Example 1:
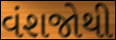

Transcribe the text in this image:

વંશજોથી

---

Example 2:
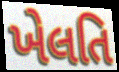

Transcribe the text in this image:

ખેલતિ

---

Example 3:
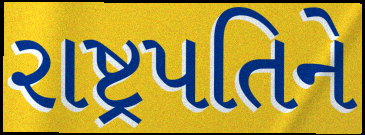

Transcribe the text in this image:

રાષ્ટ્રપતિને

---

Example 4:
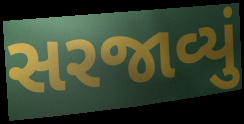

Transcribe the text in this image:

સરજાવ્યું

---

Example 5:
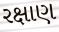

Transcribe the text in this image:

રક્ષાણ